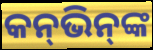
କନ୍‌ଭିନ୍‌ଙ୍କ